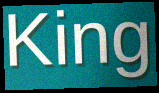
King